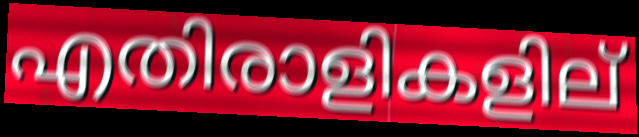
എതിരാളികളില്